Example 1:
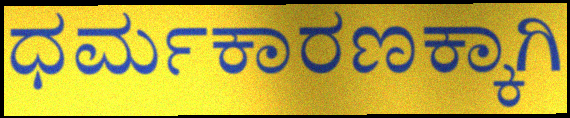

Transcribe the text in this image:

ಧರ್ಮಕಾರಣಕ್ಕಾಗಿ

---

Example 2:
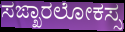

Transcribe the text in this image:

ಸಙ್ಖಾರಲೋಕಸ್ಸ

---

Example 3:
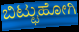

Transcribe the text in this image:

ಬಿಟ್ಟುಹೋಗಿ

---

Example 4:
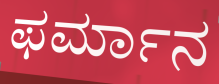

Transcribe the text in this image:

ಫರ್ಮಾನ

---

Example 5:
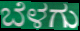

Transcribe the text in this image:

ಬೆಳಗು